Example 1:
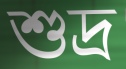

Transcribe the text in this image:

শুদ্ৰ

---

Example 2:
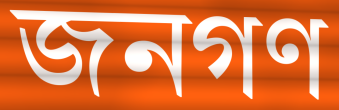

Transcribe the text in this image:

জনগণ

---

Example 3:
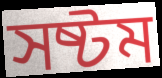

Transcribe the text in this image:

সষ্টম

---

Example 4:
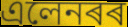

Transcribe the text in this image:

এলেনৰৰ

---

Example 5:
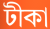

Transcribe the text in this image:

টীকা